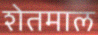
शेतमाल